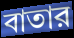
বাতার